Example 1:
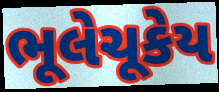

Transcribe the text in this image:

ભૂલેચૂકેય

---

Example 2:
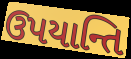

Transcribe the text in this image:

ઉપયાન્તિ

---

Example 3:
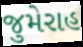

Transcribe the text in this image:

જુમેરાહ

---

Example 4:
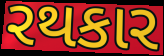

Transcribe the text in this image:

રથકાર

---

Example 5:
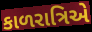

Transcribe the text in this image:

કાળરાત્રિએ